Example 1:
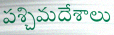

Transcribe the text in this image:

పశ్చిమదేశాలు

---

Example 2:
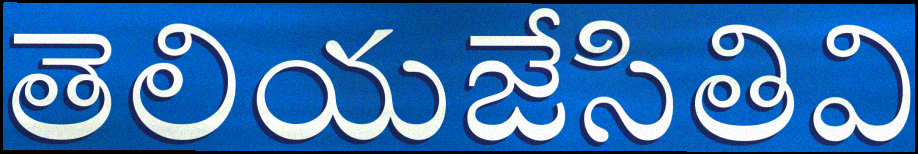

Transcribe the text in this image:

తెలియజేసితివి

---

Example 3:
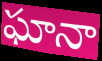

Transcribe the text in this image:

ఘానా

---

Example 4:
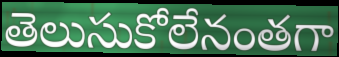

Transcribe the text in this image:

తెలుసుకోలేనంతగా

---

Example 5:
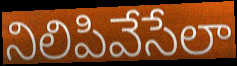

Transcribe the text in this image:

నిలిపివేసేలా